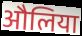
औलिया